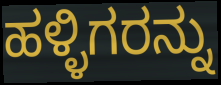
ಹಳ್ಳಿಗರನ್ನು